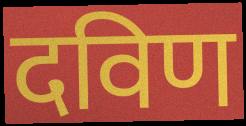
दविण